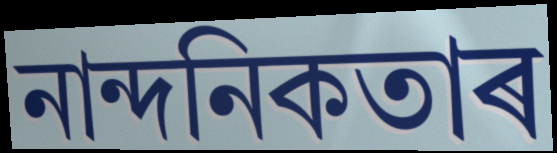
নান্দনিকতাৰ